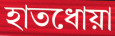
হাতধোয়া